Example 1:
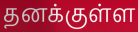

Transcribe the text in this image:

தனக்குள்ள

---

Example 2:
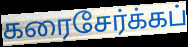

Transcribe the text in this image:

கரைசேர்க்கப்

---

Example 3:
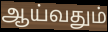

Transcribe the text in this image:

ஆய்வதும்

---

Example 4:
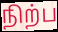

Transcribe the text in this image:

நிற்ப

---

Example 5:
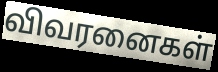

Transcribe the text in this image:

விவரனைகள்